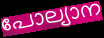
പോല്യാന